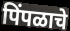
पिंपळाचे